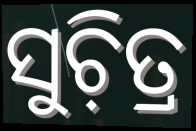
ସୁଚ଼ିତ୍ର